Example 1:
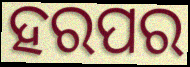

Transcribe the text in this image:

ହରପର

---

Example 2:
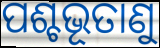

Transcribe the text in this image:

ପଶ୍ଚଭୂତାଣୁ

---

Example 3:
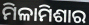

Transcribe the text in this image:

ମିଳାମିଶାର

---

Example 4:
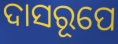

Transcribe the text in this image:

ଦାସରୂପେ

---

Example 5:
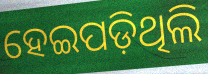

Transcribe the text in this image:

ହେଇପଡ଼ିଥିଲି